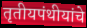
तृतीयपंथीयांचे